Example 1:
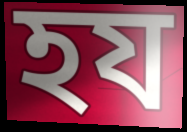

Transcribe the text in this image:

হয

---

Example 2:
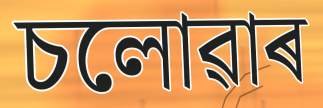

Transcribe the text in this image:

চলোৱাৰ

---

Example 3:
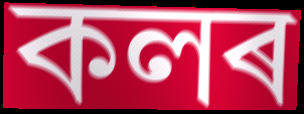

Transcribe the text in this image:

কলৰ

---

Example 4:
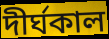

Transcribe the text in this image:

দীৰ্ঘকাল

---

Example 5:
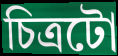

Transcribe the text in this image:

চিত্ৰটো